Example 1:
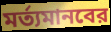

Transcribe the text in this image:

মর্ত্যমানবের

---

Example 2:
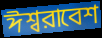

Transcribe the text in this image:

ঈশ্বরাবেশ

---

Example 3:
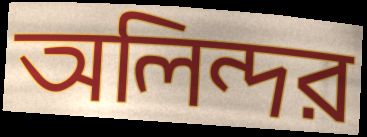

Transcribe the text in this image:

অলিন্দর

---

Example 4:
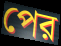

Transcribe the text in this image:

পের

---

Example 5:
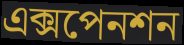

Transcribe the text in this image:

এক্সপেনশন